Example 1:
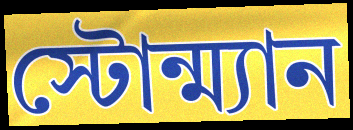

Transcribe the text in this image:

স্টোন্ম্যান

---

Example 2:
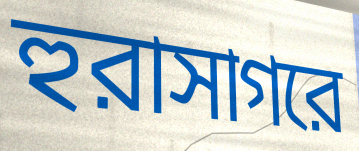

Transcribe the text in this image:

হুরাসাগরে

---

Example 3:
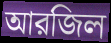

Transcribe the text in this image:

আরজিল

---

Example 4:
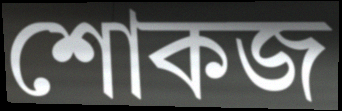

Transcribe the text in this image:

শোকজ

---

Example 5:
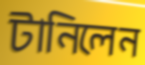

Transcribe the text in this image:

টানিলেন